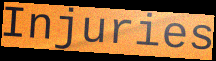
Injuries